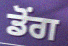
ਡੋਂਗ